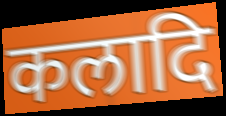
कलादि